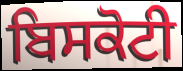
ਬਿਸਕੋਟੀ